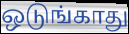
ஒடுங்காது